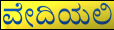
ವೇದಿಯಲಿ